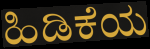
ಹಿಡಿಕೆಯ